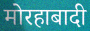
मोरहाबादी